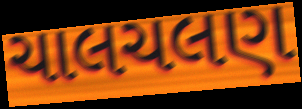
ચાલચલણ